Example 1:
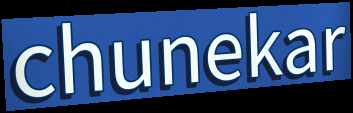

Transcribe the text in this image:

chunekar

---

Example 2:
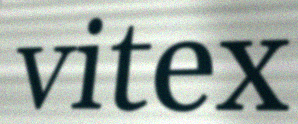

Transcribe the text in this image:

vitex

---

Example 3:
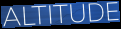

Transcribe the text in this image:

ALTITUDE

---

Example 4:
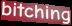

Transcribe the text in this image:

bitching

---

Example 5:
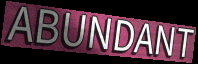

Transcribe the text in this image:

ABUNDANT